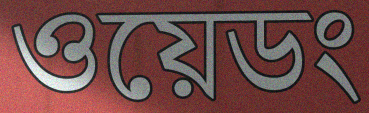
ওয়েডং